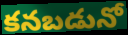
కనబడునో